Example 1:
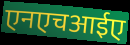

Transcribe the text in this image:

एनएचआईए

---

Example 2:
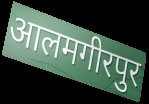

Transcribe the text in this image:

आलमगीरपुर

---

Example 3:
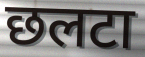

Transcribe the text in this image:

छलटा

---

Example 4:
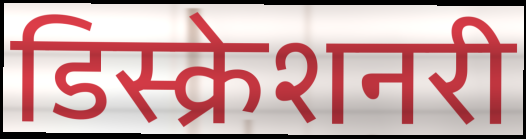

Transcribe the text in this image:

डिस्क्रेशनरी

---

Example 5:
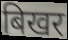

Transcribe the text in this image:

बिखर